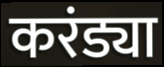
करंड्या